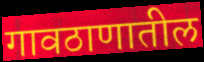
गावठाणातील